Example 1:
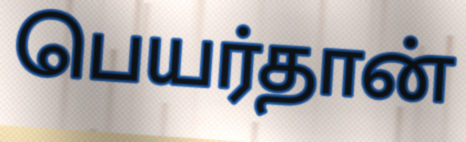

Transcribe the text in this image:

பெயர்தான்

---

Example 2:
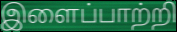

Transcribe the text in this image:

இளைப்பாற்றி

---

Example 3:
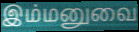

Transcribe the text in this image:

இம்மனுவை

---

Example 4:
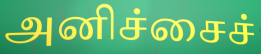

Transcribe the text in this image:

அனிச்சைச்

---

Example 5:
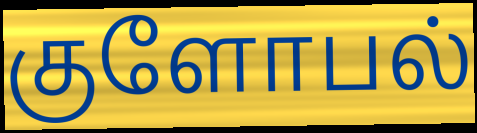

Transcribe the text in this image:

குளோபல்